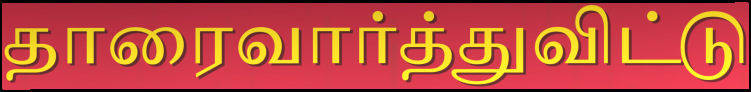
தாரைவார்த்துவிட்டு